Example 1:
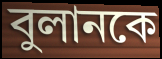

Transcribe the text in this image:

বুলানকে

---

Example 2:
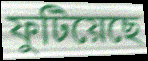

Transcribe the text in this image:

ফুটিয়েছে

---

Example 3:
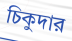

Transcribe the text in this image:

চিকুদার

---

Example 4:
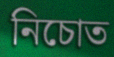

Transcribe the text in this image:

নিচোত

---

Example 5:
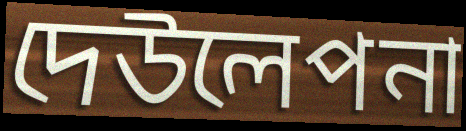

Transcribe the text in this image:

দেউলেপনা